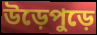
উড়েপুড়ে